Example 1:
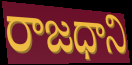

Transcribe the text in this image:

రాజధాని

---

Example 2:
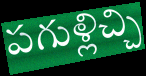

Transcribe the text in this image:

పగుళ్లిచ్చి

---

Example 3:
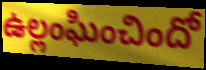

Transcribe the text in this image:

ఉల్లంఘించిందో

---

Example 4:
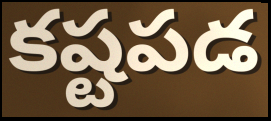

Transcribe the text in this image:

కష్టపడ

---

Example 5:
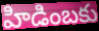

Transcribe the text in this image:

హిడింబకు